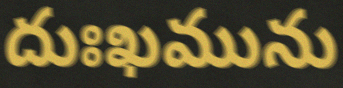
దుఃఖమును